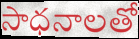
సాధనాలతో